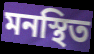
মনস্থিত